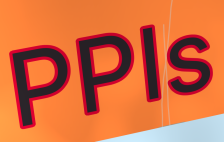
PPIs